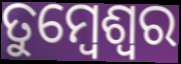
ତୁମ୍ବେଶ୍ଵର